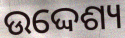
ଉଦ୍ଦେଶ୍ୟ